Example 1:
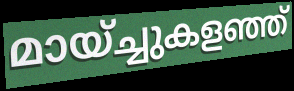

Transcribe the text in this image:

മായ്ച്ചുകളഞ്ഞ്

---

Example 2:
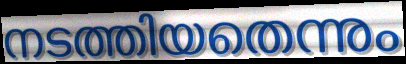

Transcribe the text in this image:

നടത്തിയതെന്നും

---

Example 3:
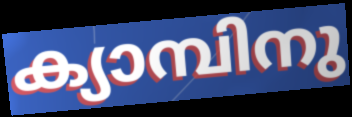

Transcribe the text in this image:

ക്യാമ്പിനു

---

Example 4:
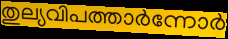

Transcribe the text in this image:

തുല്യവിപത്താർന്നോർ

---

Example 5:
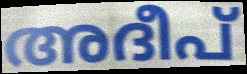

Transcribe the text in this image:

അദീപ്